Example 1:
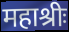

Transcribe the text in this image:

महाश्रीः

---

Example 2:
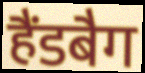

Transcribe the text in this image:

हैंडबैग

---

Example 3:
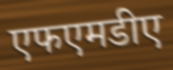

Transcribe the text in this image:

एफएमडीए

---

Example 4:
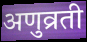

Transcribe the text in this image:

अणुव्रती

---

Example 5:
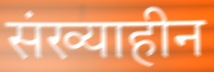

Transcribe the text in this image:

संख्याहीन